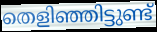
തെളിഞ്ഞിട്ടുണ്ട്